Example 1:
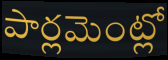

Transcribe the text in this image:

పార్లమెంట్లో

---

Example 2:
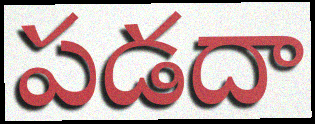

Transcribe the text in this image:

పడదా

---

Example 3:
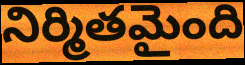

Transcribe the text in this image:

నిర్మితమైంది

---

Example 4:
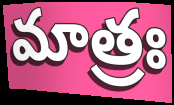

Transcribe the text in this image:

మాత్రః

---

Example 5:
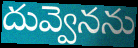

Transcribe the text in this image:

దువ్వెనను